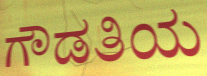
ಗೌಡತಿಯ